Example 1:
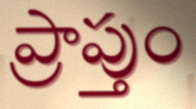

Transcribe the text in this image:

ప్రాప్తుం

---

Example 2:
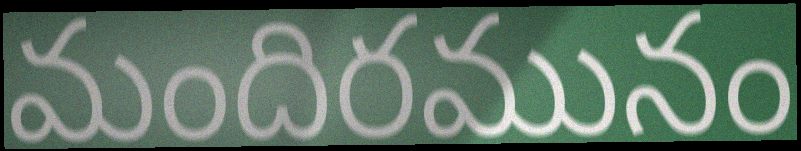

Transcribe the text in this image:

మందిరమునం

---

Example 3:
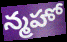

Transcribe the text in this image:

న్మహో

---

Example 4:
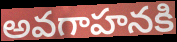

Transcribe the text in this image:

అవగాహనకి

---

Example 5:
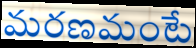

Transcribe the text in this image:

మరణమంటే